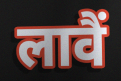
लावैं